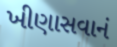
ખીણાસવાનં